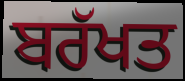
ਬਰੱਖਤ